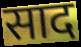
साद